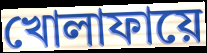
খোলাফায়ে